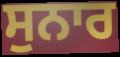
ਸੁਨਾਰ